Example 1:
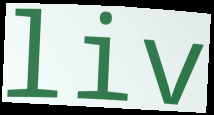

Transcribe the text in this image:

liv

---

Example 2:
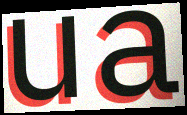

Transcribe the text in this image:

ua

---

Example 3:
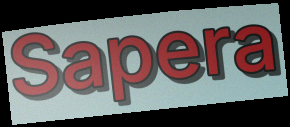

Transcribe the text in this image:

Sapera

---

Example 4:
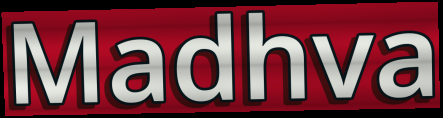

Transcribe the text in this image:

Madhva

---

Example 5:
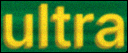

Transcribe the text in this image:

ultra